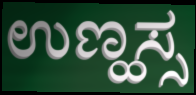
ಉಣ್ಹಸ್ಸ